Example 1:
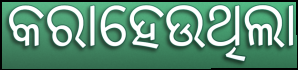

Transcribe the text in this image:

କରାହେଉଥିଲା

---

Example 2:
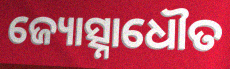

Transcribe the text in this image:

ଜ୍ୟୋତ୍ସ୍ନାଧୌତ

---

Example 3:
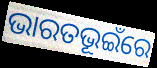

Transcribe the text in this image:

ଭାରତଭୂଇଁରେ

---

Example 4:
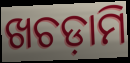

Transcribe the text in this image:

ଖଚଡ଼ାମି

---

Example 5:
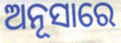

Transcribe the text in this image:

ଅନୂସାରେ